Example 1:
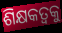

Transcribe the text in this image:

ଶିକ୍ଷକତ୍ଵକୁ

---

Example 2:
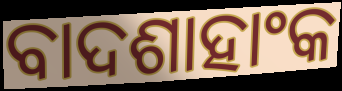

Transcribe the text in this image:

ବାଦଶାହାଂକ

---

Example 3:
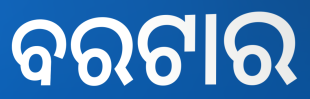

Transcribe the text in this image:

ବରଟାର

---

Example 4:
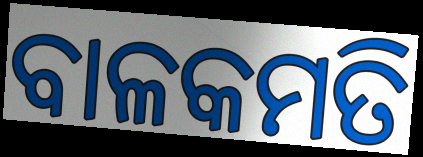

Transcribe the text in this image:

ବାଳକମତି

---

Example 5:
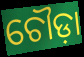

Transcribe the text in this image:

ଚୌଡ଼ା